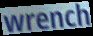
wrench